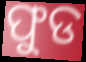
ଫୁଡ